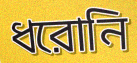
ধরোনি